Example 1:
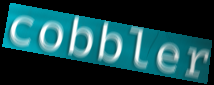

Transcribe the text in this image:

cobbler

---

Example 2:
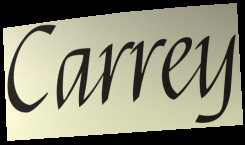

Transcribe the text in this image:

Carrey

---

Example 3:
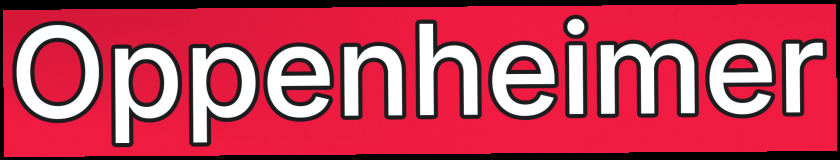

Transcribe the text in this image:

Oppenheimer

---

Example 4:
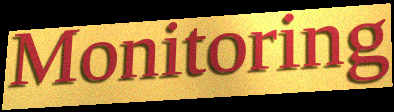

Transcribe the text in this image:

Monitoring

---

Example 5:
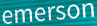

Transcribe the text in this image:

emerson